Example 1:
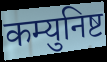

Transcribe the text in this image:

कम्युनिष्ट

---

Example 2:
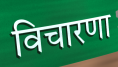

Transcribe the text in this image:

विचारणा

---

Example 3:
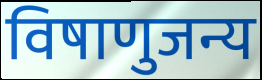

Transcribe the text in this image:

विषाणुजन्य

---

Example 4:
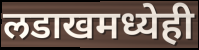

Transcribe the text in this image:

लडाखमध्येही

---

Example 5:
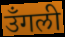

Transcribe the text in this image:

उँगली